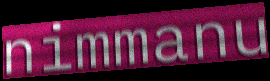
nimmanu